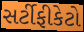
સર્ટીફીકેટો